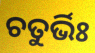
ଚତୁର୍ଭିଃ